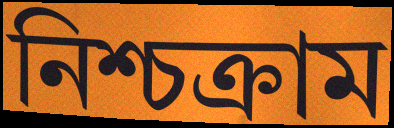
নিশ্চক্রাম